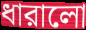
ধারালো